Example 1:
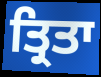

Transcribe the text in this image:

ਤ੍ਰਿਤਾ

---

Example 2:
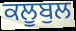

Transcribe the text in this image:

ਕਲੂਬੁਲ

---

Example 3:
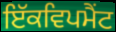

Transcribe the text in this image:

ਇੱਕਵਿਪਮੈਂਟ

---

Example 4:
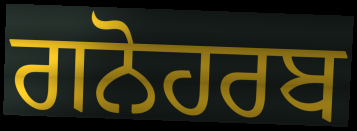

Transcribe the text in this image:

ਗਨੋਹਰਬ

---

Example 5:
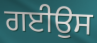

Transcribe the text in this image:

ਗਈਉਸ